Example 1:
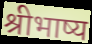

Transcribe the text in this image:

श्रीभाष्य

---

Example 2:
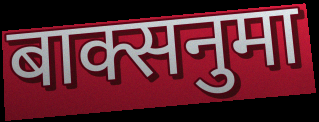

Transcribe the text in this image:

बाक्सनुमा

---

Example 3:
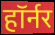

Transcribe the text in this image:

हॉर्नर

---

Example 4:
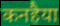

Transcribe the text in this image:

कनहैया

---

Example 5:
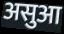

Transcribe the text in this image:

असुआ